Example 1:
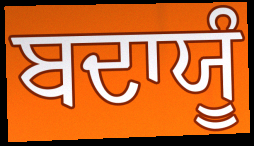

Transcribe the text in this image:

ਬਦਾਯੂੰ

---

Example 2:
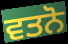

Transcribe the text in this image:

ਵਤਨੋ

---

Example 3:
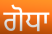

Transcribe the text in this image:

ਗੋਧਾ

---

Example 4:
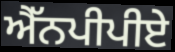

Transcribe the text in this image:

ਐੱਨਪੀਪੀਏ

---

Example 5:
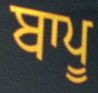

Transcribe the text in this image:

ਬਾਪੂ